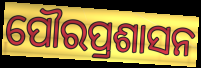
ପୌରପ୍ରଶାସନ